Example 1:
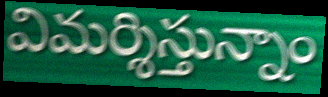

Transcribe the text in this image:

విమర్శిస్తున్నాం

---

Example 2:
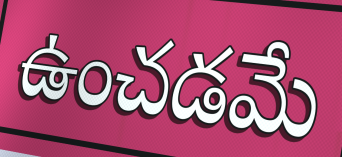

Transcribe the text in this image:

ఉంచడమే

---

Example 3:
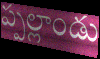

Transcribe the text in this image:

ప్పల్లాండు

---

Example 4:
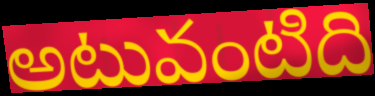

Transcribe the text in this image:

అటువంటిది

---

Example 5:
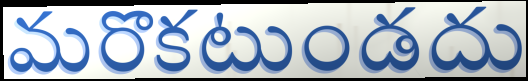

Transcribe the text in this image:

మరొకటుండదు